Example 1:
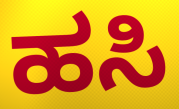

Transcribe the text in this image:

ಹಸಿ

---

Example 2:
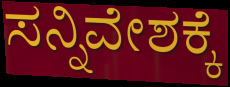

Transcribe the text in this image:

ಸನ್ನಿವೇಶಕ್ಕೆ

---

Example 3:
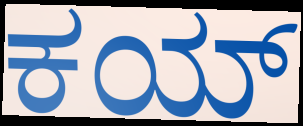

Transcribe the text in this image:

ಕಯ್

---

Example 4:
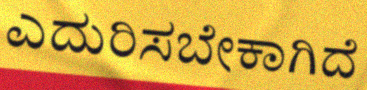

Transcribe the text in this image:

ಎದುರಿಸಬೇಕಾಗಿದೆ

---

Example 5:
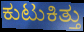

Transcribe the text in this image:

ಕುಟುಕಿತ್ತು